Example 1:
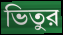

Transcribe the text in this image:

ভিতুর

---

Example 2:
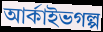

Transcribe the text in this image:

আর্কাইভগল্প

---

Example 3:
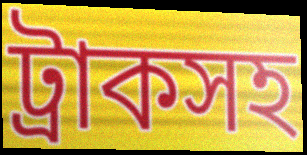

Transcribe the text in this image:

ট্রাকসহ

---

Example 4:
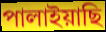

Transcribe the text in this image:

পালাইয়াছি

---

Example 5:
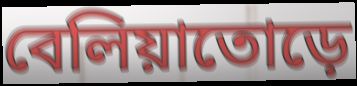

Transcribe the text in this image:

বেলিয়াতোড়ে